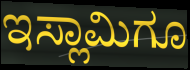
ಇಸ್ಲಾಮಿಗೂ